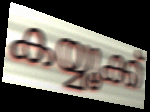
കയ്യൂക്ക്